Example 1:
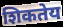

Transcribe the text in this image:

शिकतेय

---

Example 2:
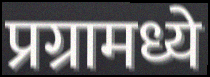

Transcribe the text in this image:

प्रग्रामध्ये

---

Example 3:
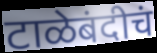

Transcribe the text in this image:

टाळेबंदीचं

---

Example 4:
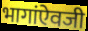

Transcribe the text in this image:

भागांऐवजी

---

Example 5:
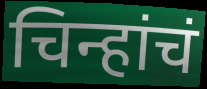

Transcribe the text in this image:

चिन्हांचं